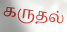
கருதல்